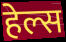
हेल्स